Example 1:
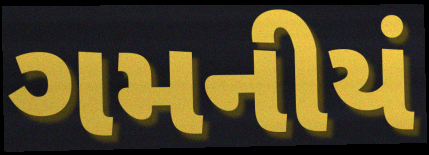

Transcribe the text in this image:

ગમનીયં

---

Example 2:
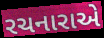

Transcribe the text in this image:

રચનારાએ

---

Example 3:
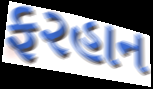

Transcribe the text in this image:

ફરહાન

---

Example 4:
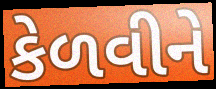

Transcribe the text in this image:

કેળવીને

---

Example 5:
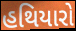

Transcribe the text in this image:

હથિયારો